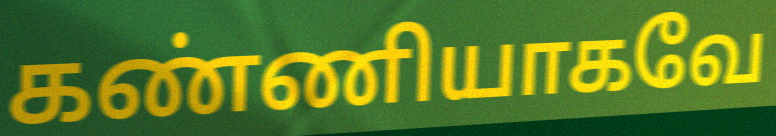
கண்ணியாகவே